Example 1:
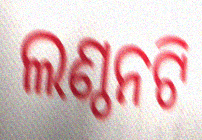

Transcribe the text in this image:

ଲଣ୍ଠନଟି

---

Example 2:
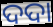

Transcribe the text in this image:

ଦଦା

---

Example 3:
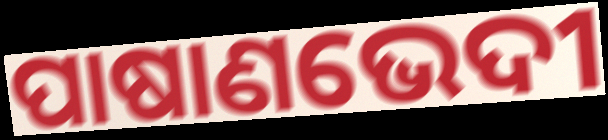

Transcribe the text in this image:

ପାଷାଣଭେଦୀ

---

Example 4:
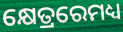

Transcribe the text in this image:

କ୍ଷେତ୍ରରେମଧ୍ୟ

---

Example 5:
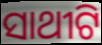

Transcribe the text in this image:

ସାଥୀଟି